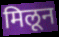
मिलून